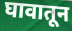
घावातून